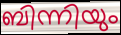
ബിന്നിയും